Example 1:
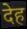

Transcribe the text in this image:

देह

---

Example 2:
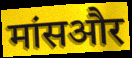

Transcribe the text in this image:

मांसऔर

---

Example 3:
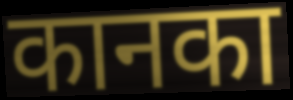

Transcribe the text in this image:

कानका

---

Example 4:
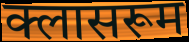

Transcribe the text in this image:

क्लासरूम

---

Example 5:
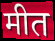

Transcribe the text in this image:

मीत